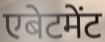
एबेटमेंट